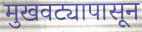
मुखवट्यापासून